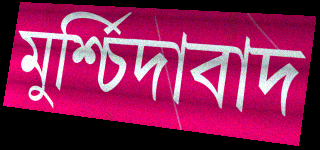
মুৰ্শ্চিদাবাদ